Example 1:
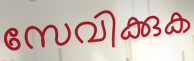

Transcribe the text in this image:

സേവിക്കുക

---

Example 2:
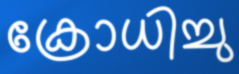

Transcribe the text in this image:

ക്രോധിച്ചു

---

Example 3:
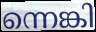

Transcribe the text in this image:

ന്നെങ്കി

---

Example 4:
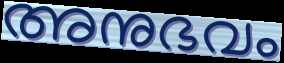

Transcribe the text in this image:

അനുഭവം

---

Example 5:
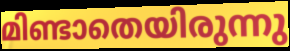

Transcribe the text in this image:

മിണ്ടാതെയിരുന്നു